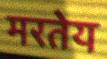
मरतेय